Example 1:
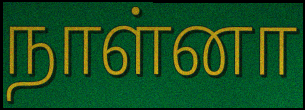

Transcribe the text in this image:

நாள்னா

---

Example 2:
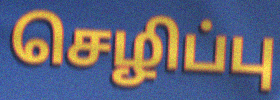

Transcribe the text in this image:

செழிப்பு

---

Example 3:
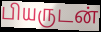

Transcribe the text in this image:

பியருடன்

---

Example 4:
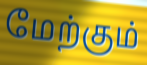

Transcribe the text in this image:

மேற்கும்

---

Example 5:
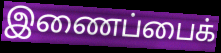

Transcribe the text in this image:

இணைப்பைக்